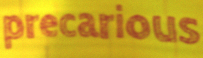
precarious